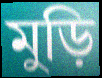
মুড়ি